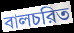
বালচরিত